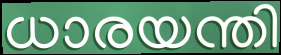
ധാരയന്തി